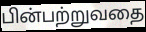
பின்பற்றுவதை